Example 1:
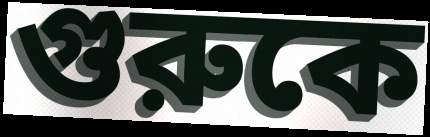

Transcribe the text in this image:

গুরুকে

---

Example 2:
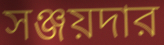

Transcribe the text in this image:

সঞ্জয়দার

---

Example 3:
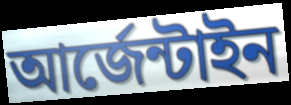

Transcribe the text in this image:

আর্জেন্টাইন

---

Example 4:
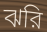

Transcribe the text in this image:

ঝরি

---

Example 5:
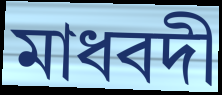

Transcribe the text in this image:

মাধবদী